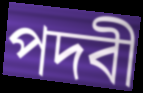
পদবী